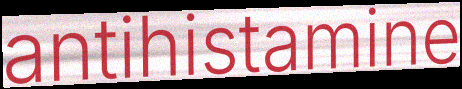
antihistamine